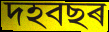
দহবছৰ